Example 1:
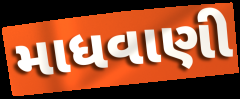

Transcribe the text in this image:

માધવાણી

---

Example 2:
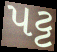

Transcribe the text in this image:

પટ્ટ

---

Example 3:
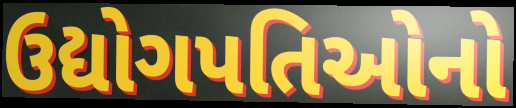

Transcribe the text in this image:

ઉદ્યોગપતિઓનો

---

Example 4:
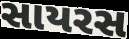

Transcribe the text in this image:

સાયરસ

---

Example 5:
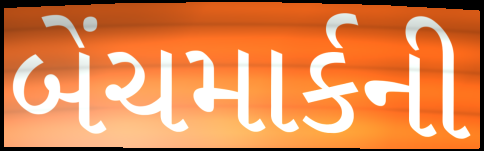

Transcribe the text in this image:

બેંચમાર્કની